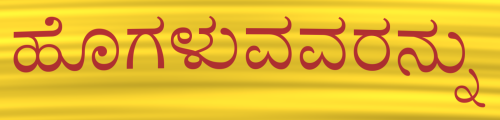
ಹೊಗಳುವವರನ್ನು